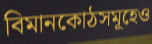
বিমানকোঠসমূহেও